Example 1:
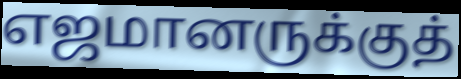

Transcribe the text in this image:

எஜமானருக்குத்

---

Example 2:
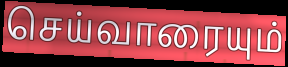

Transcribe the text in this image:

செய்வாரையும்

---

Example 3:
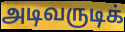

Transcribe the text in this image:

அடிவருடிக்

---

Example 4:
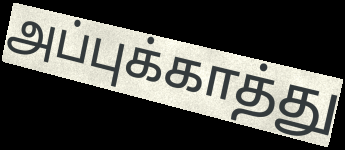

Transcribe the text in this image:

அப்புக்காத்து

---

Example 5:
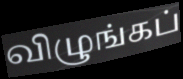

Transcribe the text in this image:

விழுங்கப்